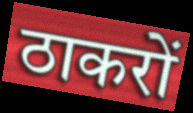
ठाकरों